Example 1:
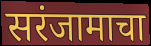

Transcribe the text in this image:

सरंजामाचा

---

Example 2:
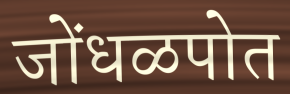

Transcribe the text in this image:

जोंधळपोत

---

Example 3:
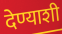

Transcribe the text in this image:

देण्याशी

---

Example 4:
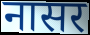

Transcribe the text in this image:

नासर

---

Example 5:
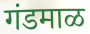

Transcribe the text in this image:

गंडमाळ